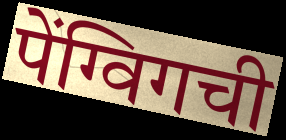
पेंग्विगची